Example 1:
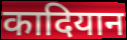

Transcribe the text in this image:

कादियान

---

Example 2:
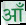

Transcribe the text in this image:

आँ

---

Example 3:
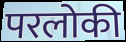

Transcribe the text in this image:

परलोकी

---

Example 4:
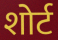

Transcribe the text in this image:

शोर्ट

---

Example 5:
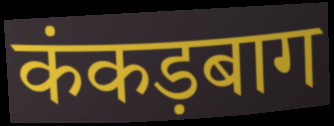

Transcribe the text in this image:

कंकड़बाग